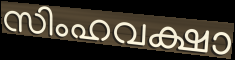
സിംഹവക്ഷാ